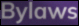
Bylaws